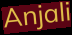
Anjali